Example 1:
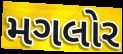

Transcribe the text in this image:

મગલોર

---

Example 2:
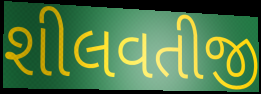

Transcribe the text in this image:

શીલવતીજી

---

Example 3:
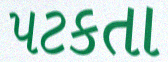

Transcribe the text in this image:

પટકતા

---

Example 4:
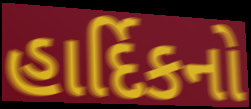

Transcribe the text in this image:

હાર્દિકનો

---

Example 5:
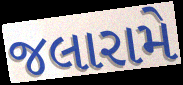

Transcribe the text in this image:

જલારામે